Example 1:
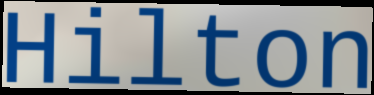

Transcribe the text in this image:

Hilton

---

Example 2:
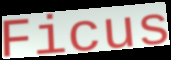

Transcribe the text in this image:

Ficus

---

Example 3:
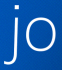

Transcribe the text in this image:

jo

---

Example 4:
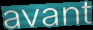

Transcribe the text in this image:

avant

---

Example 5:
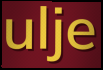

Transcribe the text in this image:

ulje